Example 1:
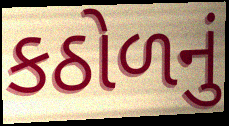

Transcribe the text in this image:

કઠોળનું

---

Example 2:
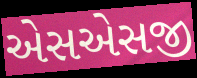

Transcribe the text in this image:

એસએસજી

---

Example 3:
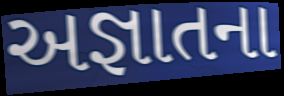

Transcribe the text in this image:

અજ્ઞાતના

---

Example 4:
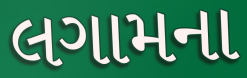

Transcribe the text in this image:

લગામના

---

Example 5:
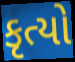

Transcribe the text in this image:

કૃત્યો